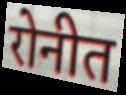
रोनीत